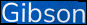
Gibson